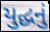
યુદ્ધનું